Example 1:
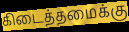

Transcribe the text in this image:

கிடைத்தமைக்கு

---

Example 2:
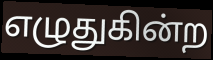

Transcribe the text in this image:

எழுதுகின்ற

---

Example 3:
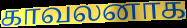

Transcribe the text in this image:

காவலனாக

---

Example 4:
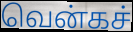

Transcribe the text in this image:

வென்கச்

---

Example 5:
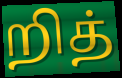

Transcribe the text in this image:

றித்